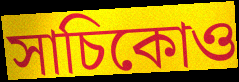
সাচিকোও